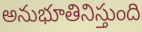
అనుభూతినిస్తుంది